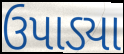
ઉપાડ્યા